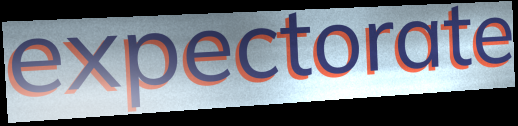
expectorate